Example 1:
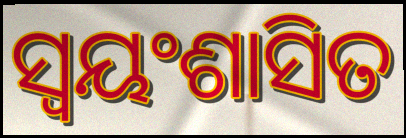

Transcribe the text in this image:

ସ୍ବୟଂଶାସିତ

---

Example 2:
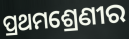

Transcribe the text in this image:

ପ୍ରଥମଶ୍ରେଣୀର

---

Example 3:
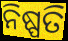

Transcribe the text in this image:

ନିଷ୍ପତି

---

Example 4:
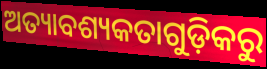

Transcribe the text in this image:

ଅତ୍ୟାବଶ୍ୟକତାଗୁଡ଼ିକରୁ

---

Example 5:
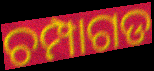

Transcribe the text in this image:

ଚମ୍ପାଗଡ